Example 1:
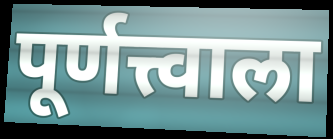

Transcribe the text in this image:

पूर्णत्त्वाला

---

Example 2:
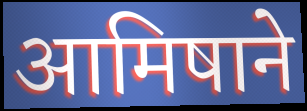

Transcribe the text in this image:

आमिषाने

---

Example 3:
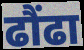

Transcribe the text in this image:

ढौंढा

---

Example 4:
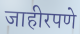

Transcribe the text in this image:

जाहीरपणे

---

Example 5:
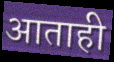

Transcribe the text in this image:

आताही